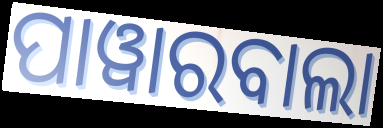
ପାୱାରବାଲା